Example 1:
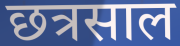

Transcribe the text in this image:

छत्रसाल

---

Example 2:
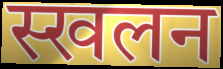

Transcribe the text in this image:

स्‍खलन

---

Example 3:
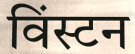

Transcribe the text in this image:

विंस्टन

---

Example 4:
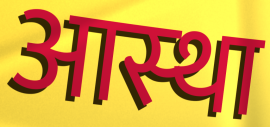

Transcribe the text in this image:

आस्‍था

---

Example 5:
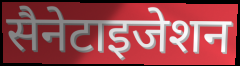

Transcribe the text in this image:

सैनेटाइजेशन